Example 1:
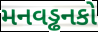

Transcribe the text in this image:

મનવડ્ઢનકો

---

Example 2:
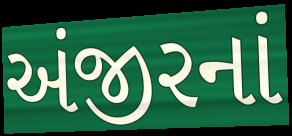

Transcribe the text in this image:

અંજીરનાં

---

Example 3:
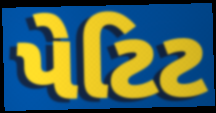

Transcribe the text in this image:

પેટિટ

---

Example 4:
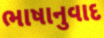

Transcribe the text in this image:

ભાષાનુવાદ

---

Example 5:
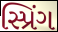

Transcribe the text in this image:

સ્પ્રિંગ